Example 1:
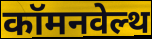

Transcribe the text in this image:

कॉमनवेल्थ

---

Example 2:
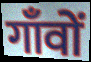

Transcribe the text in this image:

गाँवों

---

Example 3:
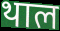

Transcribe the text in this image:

थाल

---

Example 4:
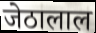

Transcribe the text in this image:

जेठालाल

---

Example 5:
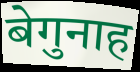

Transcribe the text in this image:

बेगुनाह